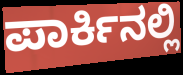
ಪಾರ್ಕಿನಲ್ಲಿ